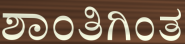
ಶಾಂತಿಗಿಂತ